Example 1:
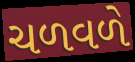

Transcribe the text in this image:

ચળવળે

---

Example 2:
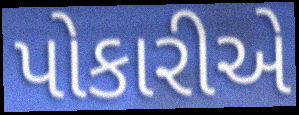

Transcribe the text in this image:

પોકારીએ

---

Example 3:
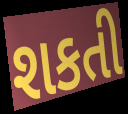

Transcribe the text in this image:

શકતી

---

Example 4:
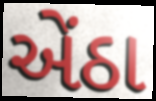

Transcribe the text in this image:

એંઠા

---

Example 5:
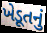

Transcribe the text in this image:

ખેડૂતનું